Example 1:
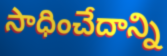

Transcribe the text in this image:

సాధించేదాన్ని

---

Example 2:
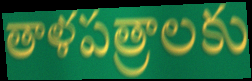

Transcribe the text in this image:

తాళపత్రాలకు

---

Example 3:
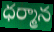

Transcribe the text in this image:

ధర్మాన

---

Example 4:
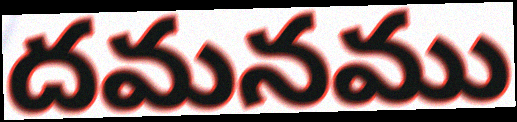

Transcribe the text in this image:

దమనము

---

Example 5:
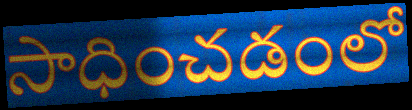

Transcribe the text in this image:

సాధించడంలో